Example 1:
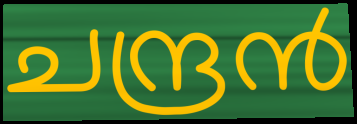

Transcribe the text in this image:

ചന്ദ്രൻ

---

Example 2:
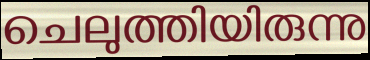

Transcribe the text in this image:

ചെലുത്തിയിരുന്നു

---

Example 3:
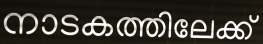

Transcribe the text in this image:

നാടകത്തിലേക്ക്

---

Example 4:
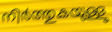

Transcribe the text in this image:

നിർത്തുകയുള്ളു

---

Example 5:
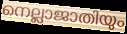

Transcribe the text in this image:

നെല്ലാജാതിയും